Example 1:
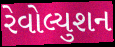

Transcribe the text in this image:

રેવોલ્યુશન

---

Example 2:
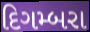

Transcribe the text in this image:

દિગમ્બરા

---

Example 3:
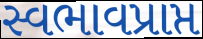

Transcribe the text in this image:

સ્વભાવપ્રાપ્ત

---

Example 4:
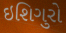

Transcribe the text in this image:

ઇશિગુરો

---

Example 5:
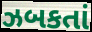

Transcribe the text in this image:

ઝબકતાં